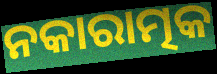
ନକାରାତ୍ମକ